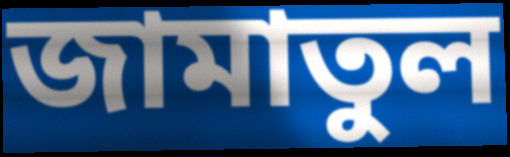
জামাতুল